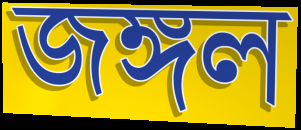
জঙ্গল